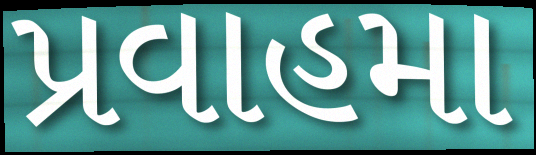
પ્રવાહમા